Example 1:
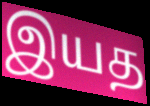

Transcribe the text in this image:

இயத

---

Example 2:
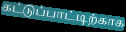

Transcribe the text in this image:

கட்டுப்பாட்டிற்காக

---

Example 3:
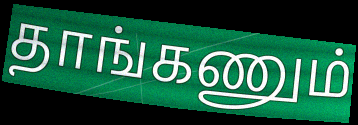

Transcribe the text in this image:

தாங்கணும்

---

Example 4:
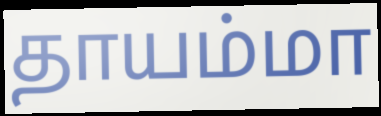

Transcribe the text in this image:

தாயம்மா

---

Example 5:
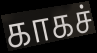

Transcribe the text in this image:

காகச்